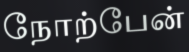
நோற்பேன்